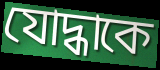
যোদ্ধাকে